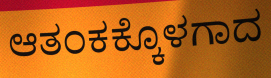
ಆತಂಕಕ್ಕೊಳಗಾದ